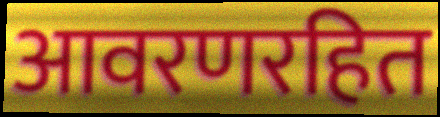
आवरणरहित